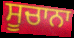
ਸੂਚਾਨਾ